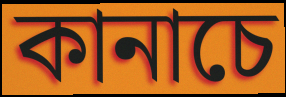
কানাচে